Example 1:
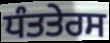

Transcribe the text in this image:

ਧੰਤਤੇਰਸ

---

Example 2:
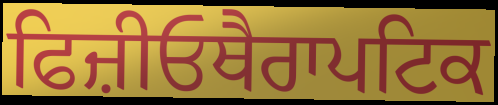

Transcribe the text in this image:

ਫਿਜ਼ੀਓਥੈਰਾਪਟਿਕ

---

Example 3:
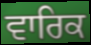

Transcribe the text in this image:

ਵਾਰਿਕ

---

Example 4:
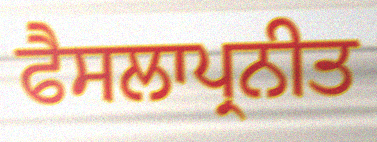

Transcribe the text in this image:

ਫੈਸਲਾਪ੍ਰਨੀਤ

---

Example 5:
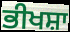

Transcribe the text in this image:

ਭੀਖਸ਼ਾ